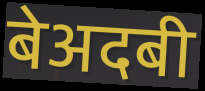
बेअदबी